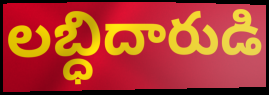
లబ్ధిదారుడి